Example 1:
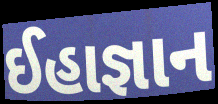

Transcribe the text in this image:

ઈહાજ્ઞાન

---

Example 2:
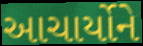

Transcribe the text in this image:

આચાર્યોને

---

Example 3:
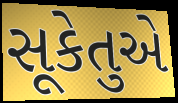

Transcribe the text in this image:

સૂકેતુએ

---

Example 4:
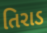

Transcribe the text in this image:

તિરાડ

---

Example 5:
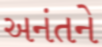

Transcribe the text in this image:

અનંતને